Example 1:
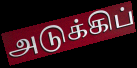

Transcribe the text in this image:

அடுக்கிப்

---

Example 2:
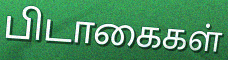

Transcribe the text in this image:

பிடாகைகள்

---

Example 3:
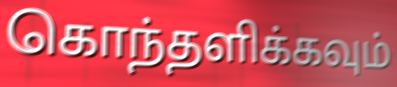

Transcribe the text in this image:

கொந்தளிக்கவும்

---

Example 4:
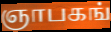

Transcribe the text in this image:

ஞாபகங்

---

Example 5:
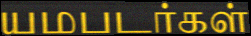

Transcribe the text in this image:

யமபடர்கள்